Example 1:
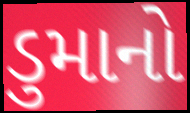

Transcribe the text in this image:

ડુમાનો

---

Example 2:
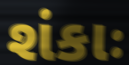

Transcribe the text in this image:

શંકાઃ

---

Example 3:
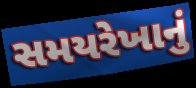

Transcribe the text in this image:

સમયરેખાનું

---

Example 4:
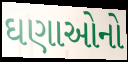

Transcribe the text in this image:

ઘણાઓનો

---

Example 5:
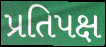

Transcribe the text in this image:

પ્રતિપક્ષ